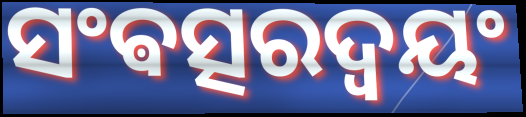
ସଂଵତ୍ସରଦ୍ଵୟଂ